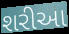
શરીઆ